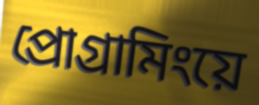
প্রোগ্রামিংয়ে